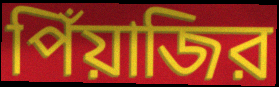
পিঁয়াজির